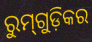
ରୁମ୍‌ଗୁଡ଼ିକର